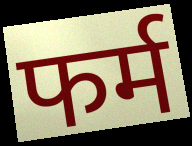
फर्म